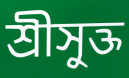
শ্রীসুক্ত